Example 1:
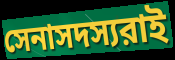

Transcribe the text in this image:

সেনাসদস্যরাই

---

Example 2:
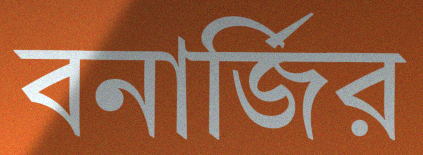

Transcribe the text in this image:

বনার্জির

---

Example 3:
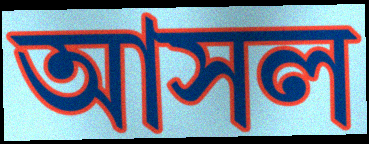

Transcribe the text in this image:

আসল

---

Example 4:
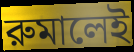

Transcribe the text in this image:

রুমালেই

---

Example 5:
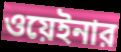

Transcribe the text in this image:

ওয়েইনার